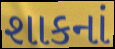
શાકનાં